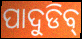
ପାଦୁଡିବ୍